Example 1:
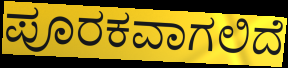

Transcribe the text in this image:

ಪೂರಕವಾಗಲಿದೆ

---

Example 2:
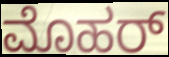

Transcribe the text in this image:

ಮೊಹರ್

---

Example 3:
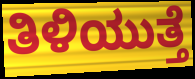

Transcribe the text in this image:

ತಿಳಿಯುತ್ತೆ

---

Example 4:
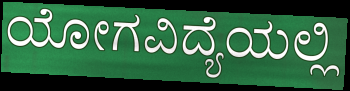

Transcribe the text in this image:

ಯೋಗವಿದ್ಯೆಯಲ್ಲಿ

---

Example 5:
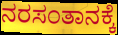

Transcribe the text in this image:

ನರಸಂತಾನಕ್ಕೆ